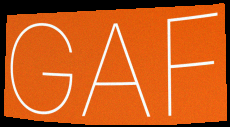
GAF